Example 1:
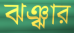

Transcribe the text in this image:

ঝঞ্ঝার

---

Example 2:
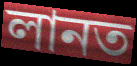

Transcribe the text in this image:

লানত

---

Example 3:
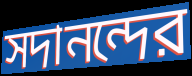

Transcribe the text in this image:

সদানন্দের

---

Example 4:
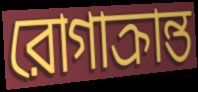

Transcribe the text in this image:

রোগাক্রান্ত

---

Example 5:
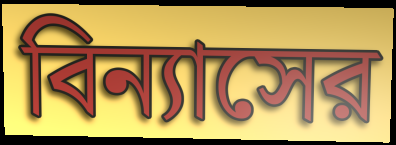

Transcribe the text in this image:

বিন্যাসের